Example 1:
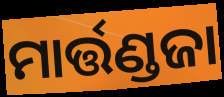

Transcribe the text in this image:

ମାର୍ତ୍ତଣ୍ଡଜା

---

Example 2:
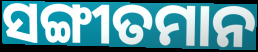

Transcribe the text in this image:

ସଙ୍ଗୀତମାନ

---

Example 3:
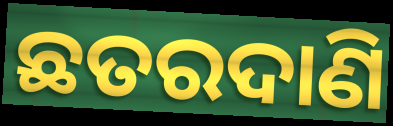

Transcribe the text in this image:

ଛତରଦାଣି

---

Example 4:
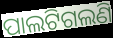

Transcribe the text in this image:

ପାଲଟିଗଲଣି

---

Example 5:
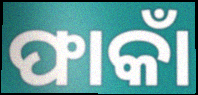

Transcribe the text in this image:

ଫାକାଁ